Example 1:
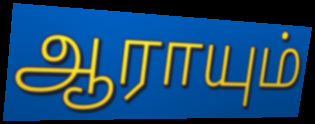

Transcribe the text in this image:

ஆராயும்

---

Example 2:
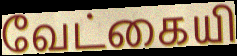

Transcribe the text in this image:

வேட்கையி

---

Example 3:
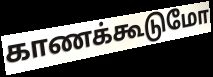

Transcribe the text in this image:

காணக்கூடுமோ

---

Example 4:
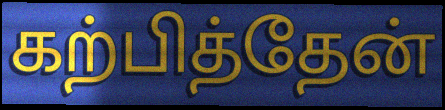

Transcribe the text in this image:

கற்பித்தேன்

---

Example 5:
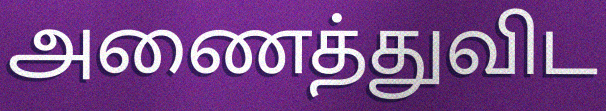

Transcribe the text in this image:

அணைத்துவிட